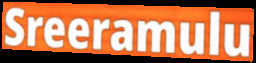
Sreeramulu